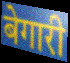
बेगारी